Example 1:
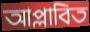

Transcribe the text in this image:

আপ্লাবিত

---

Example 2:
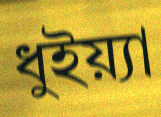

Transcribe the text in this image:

ধুইয়্যা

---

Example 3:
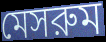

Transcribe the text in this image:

মেসরুম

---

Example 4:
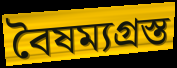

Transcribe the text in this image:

বৈষম্যগ্রস্ত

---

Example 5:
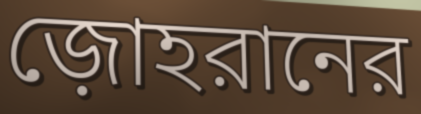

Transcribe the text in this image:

জ়োহরানের